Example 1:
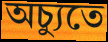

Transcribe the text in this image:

অচ্যুতে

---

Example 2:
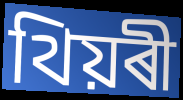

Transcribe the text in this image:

থিয়ৰী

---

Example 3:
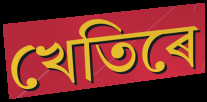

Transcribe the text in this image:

খেতিৰে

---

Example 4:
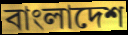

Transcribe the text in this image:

বাংলাদেশ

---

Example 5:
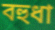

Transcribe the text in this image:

বহুধা